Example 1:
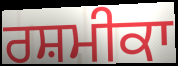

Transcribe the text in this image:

ਰਸ਼ਮੀਕਾ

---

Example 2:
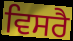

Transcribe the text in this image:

ਵਿਸਰੈ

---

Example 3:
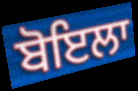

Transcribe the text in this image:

ਬੋਇਲਾ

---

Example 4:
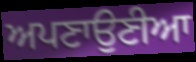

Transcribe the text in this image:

ਅਪਣਾਉਣੀਆ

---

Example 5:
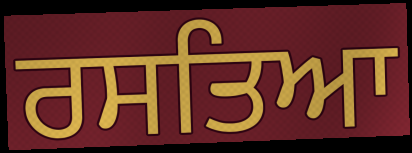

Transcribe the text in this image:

ਰਸਤਿਆ